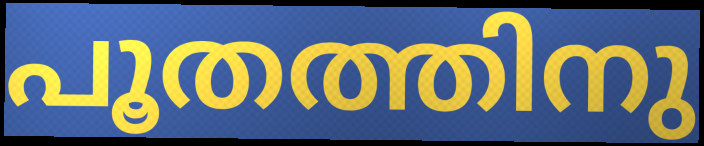
പൂതത്തിനു